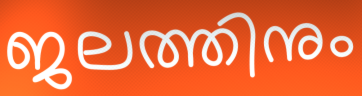
ജലത്തിനും